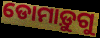
ଡୋମାଡ଼ୁଗୁ